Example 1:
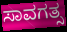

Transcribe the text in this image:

ಸಾವಗತ್ಸ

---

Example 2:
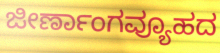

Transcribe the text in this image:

ಜೀರ್ಣಾಂಗವ್ಯೂಹದ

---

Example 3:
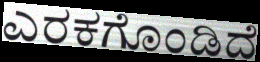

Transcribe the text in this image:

ಎರಕಗೊಂಡಿದೆ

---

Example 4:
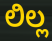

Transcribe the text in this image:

ಲಿಲ್ಲ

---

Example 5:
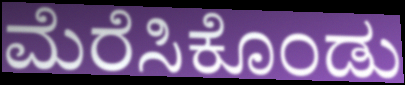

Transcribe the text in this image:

ಮೆರೆಸಿಕೊಂಡು